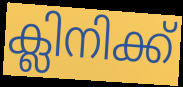
ക്ലിനിക്ക്